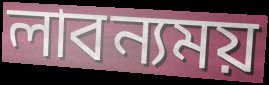
লাবন্যময়